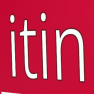
itin